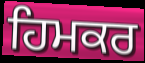
ਹਿਮਕਰ